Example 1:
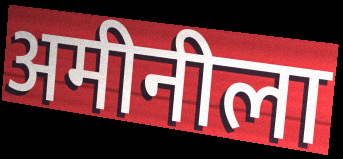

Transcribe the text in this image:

अमीनीला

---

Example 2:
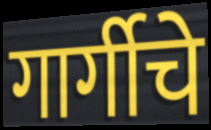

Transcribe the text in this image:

गार्गीचे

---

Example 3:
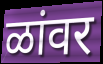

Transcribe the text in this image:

ळांवर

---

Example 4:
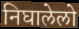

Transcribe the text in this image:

निघालेलो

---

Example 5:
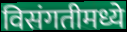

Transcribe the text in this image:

विसंगतीमध्ये